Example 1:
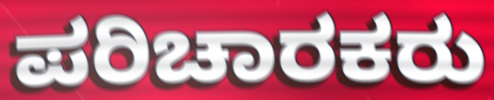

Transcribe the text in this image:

ಪರಿಚಾರಕರು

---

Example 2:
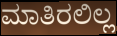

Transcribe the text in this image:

ಮಾತಿರಲಿಲ್ಲ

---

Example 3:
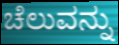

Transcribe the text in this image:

ಚೆಲುವನ್ನು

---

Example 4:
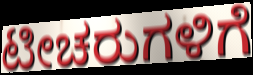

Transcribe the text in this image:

ಟೀಚರುಗಳಿಗೆ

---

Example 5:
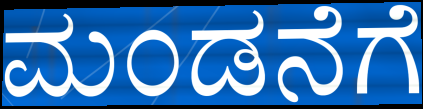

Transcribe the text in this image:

ಮಂಡನೆಗೆ